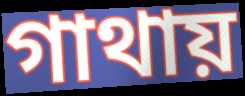
গাথায়